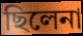
ছিলেনা